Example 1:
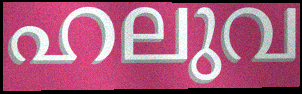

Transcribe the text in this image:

ഹലുവ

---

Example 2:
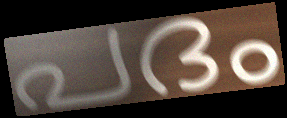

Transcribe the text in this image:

പദം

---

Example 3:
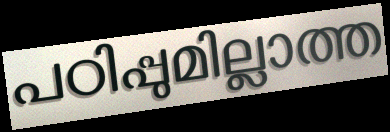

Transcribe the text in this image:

പഠിപ്പുമില്ലാത്ത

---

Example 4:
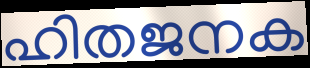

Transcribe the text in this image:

ഹിതജനക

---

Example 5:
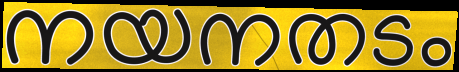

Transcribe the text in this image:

നയനതടം